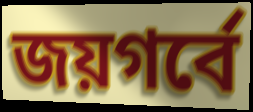
জয়গর্বে